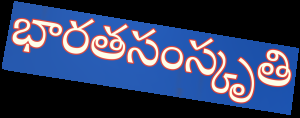
భారతసంస్కృతి